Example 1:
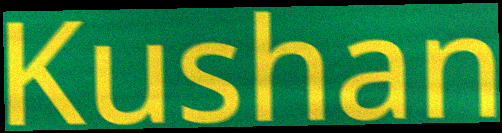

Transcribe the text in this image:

Kushan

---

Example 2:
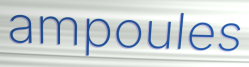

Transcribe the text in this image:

ampoules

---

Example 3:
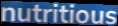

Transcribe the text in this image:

nutritious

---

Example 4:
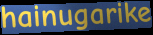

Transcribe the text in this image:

hainugarike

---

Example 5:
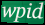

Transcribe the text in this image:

wpid